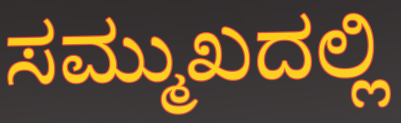
ಸಮ್ಮುಖದಲ್ಲಿ